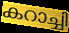
കറാച്ചി